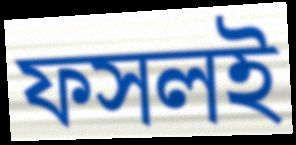
ফসলই